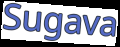
Sugava